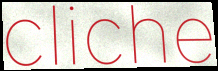
cliche